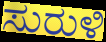
ಸುರುಳಿ